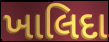
ખાલિદા